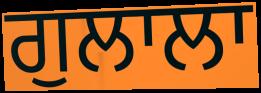
ਗੁਲਾਲਾ